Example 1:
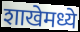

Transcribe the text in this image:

शाखेमध्ये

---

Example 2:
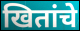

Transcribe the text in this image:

खितांचे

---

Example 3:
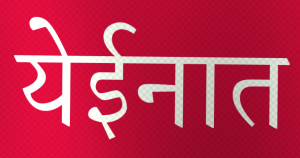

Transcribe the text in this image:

येईनात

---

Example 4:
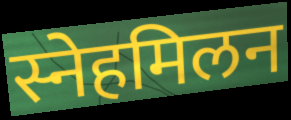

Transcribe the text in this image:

स्नेहमिलन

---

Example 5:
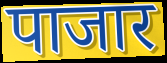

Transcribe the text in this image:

पाजार